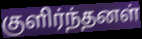
குளிர்ந்தனள்